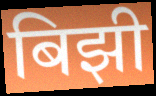
बिझी